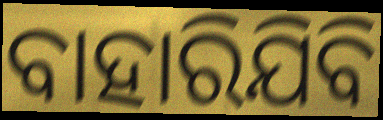
ବାହାରିଯିବି